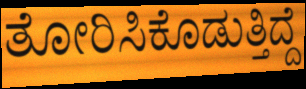
ತೋರಿಸಿಕೊಡುತ್ತಿದ್ದೆ